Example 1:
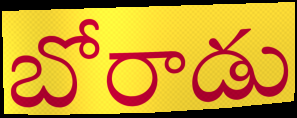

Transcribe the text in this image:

బోరాడు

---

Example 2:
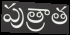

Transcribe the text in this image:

పుత్రాత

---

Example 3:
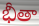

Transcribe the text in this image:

భీతా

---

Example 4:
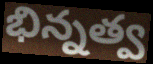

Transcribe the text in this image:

భిన్నత్వ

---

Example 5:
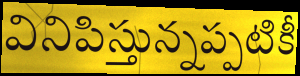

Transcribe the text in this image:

వినిపిస్తున్నప్పటికీ